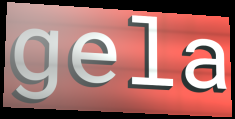
gela